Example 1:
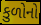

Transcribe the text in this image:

કુળોનો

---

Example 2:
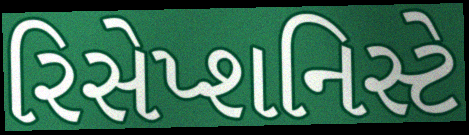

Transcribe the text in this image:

રિસેપ્શનિસ્ટે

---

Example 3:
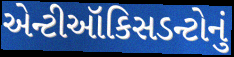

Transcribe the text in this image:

એન્ટીઑકિસડન્ટોનું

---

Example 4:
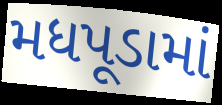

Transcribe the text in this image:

મધપૂડામાં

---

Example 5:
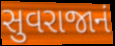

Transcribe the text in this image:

સુવરાજાનં